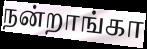
நன்றாங்கா